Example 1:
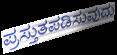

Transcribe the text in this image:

ಪ್ರಸ್ತುತಪಡಿಸುವುದು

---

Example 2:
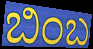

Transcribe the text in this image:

ಬಿಂಬ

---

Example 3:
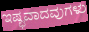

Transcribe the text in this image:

ಇಷ್ಟವಾದವುಗಳು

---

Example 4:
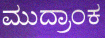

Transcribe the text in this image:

ಮುದ್ರಾಂಕ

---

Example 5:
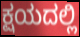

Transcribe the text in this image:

ಕ್ಷಯದಲ್ಲಿ